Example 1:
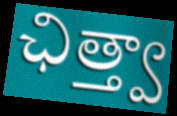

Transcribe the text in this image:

ఛిత్త్వా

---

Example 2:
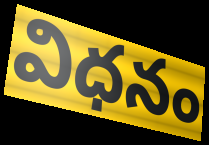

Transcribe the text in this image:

విధనం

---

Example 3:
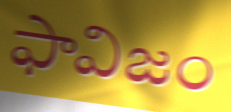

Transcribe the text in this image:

ఫావిజం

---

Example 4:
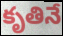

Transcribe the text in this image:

కృతినే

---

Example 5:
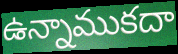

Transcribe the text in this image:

ఉన్నాముకదా